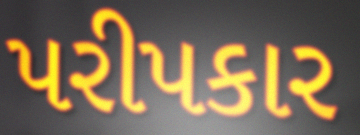
પરીપકાર